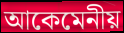
আকেমেনীয়